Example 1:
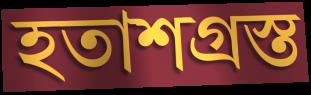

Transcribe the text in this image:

হতাশগ্ৰস্ত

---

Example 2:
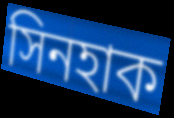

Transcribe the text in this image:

সিনহাক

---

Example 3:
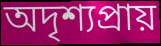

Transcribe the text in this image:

অদৃশ্যপ্ৰায়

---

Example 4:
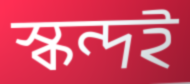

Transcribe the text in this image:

স্কন্দই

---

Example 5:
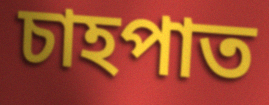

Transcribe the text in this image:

চাহপাত